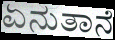
ಏನುತಾನೆ